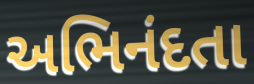
અભિનંદતા